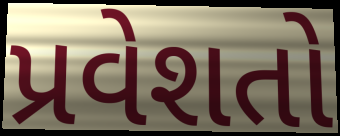
પ્રવેશતો